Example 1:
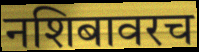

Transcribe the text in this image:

नशिबावरच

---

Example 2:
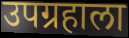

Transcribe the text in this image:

उपग्रहाला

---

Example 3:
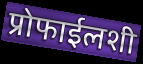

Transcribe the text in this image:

प्रोफाईलशी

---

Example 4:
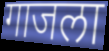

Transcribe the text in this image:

गाजला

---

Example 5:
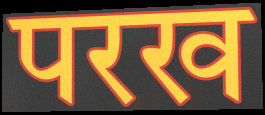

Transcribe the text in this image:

परख